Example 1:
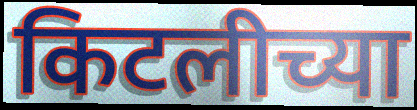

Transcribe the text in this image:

किटलीच्या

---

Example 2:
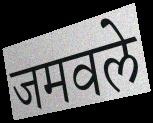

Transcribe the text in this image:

जमवले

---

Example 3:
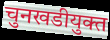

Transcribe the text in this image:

चुनखडीयुक्त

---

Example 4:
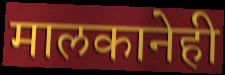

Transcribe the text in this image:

मालकानेही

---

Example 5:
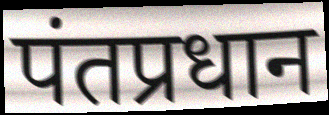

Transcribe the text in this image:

पंतप्रधान